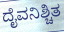
ದೈವನಿಶ್ಚಿತ